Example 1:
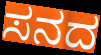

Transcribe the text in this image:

ಸನದ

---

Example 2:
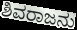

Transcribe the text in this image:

ಶಿವರಾಜನು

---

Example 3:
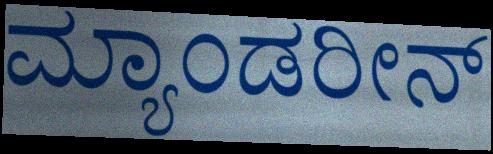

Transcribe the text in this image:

ಮ್ಯಾಂಡರೀನ್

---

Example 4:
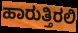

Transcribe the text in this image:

ಹಾರುತ್ತಿರಲಿ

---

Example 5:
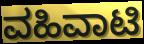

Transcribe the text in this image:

ವಹಿವಾಟಿ